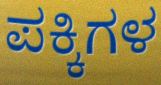
ಪಕ್ಕಿಗಳ